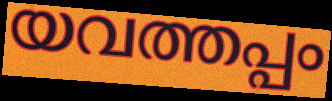
യവത്തപ്പം